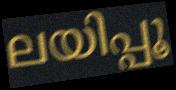
ലയിപ്പൂ